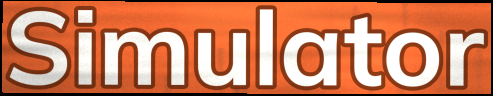
Simulator